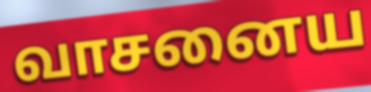
வாசனைய